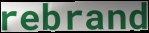
rebrand